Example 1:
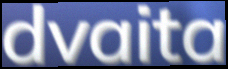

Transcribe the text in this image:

dvaita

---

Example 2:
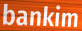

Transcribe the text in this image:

bankim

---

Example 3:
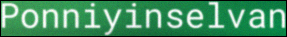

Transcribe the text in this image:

Ponniyinselvan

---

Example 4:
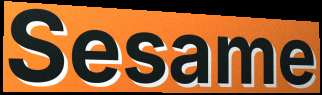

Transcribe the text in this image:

Sesame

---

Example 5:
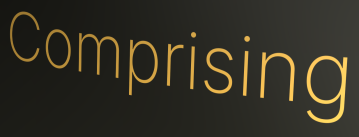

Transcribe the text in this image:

Comprising